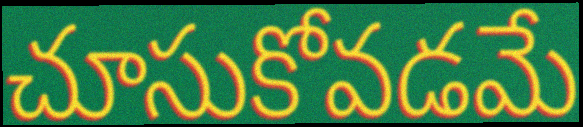
చూసుకోవడమే